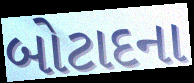
બોટાદના